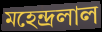
মহেন্দ্রলাল